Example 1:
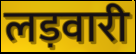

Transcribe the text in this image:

लड़वारी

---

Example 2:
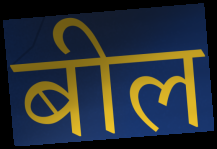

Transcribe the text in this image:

बील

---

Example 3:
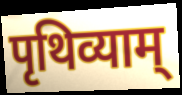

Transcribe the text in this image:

पृथिव्याम्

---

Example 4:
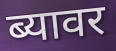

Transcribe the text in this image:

ब्यावर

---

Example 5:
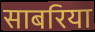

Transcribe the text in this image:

साबरिया